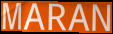
MARAN